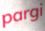
pargi